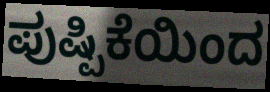
ಪುಷ್ಪಿಕೆಯಿಂದ